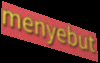
menyebut